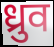
ध्रुव